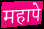
महापे